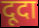
दूदा